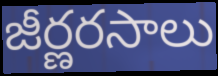
జీర్ణరసాలు